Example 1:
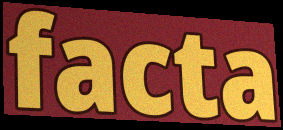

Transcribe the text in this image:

facta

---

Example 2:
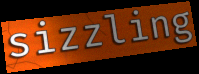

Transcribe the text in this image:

sizzling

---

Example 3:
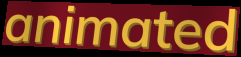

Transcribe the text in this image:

animated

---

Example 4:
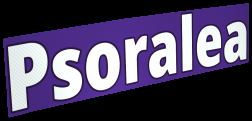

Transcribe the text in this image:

Psoralea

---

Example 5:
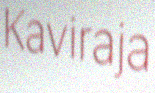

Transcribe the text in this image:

Kaviraja